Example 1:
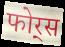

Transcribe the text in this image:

फोर्स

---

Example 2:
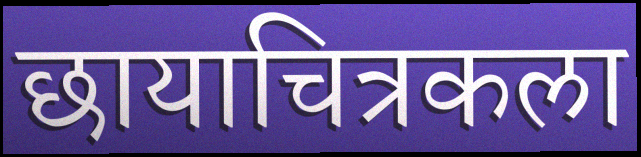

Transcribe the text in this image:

छायाचित्रकला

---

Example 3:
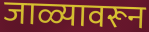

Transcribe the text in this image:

जाळ्यावरून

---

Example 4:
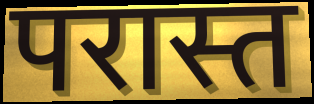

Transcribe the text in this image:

परास्त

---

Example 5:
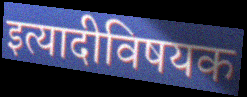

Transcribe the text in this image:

इत्यादीविषयक